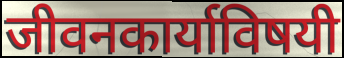
जीवनकार्याविषयी